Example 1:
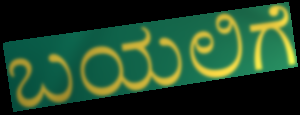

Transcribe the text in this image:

ಬಯಲಿಗೆ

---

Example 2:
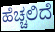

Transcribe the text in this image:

ಹೆಚ್ಚಲಿದೆ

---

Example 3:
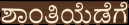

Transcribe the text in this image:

ಶಾಂತಿಯೆಡೆಗೆ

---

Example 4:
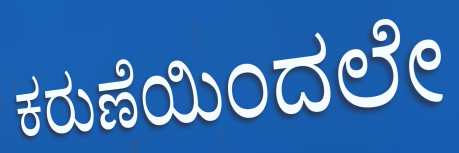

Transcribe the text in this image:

ಕರುಣೆಯಿಂದಲೇ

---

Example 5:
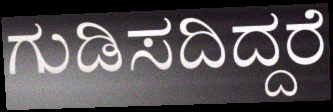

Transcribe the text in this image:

ಗುಡಿಸದಿದ್ದರೆ